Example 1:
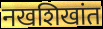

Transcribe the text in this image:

नखशिखांत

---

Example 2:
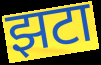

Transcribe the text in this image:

झटा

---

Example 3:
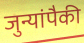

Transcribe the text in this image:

जुन्यांपैकी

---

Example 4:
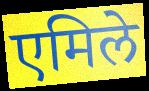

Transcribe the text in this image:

एमिले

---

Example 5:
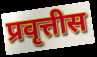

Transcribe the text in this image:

प्रवृत्तीस